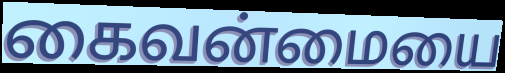
கைவன்மையை